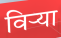
विऱ्या